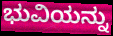
ಭುವಿಯನ್ನು